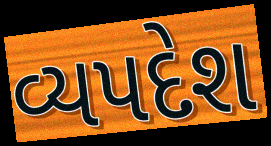
વ્યપદેશ